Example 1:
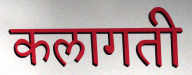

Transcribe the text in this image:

कलागती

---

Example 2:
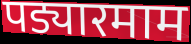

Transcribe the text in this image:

पड्यारमाम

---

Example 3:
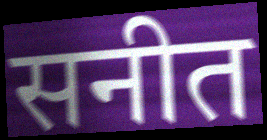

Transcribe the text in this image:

सनीत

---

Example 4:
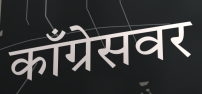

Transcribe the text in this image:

काँग्रेसवर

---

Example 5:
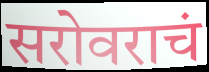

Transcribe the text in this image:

सरोवराचं